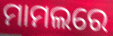
ମାମଲରେ